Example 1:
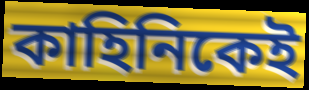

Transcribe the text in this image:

কাহিনিকেই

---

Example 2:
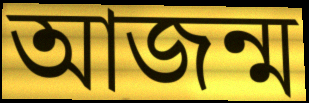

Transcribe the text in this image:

আজন্ম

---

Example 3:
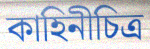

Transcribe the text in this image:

কাহিনীচিত্র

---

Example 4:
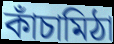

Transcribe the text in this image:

কাঁচামিঠা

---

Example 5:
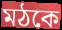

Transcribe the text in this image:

মঠকে